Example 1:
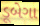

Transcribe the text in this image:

ડૂબેગા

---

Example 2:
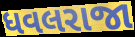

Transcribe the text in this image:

ધવલરાજા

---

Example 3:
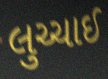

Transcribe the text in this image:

લુચ્ચાઈ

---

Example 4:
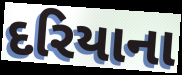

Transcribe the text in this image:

દરિયાના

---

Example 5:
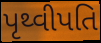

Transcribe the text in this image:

પૃથ્વીપતિ